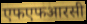
एफएफआरसी